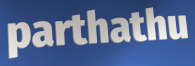
parthathu